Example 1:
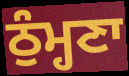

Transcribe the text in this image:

ਠੁੰਮ੍ਹਣਾ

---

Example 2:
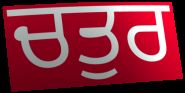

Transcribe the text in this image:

ਚਤੁਰ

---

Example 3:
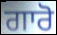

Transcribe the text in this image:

ਗਾਰੋ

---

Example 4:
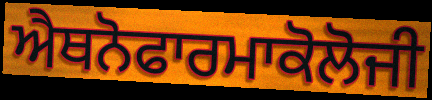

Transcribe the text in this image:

ਐਥਨੋਫਾਰਮਾਕੋਲੋਜੀ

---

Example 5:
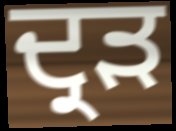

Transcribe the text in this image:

ਦ੍ਰੜ